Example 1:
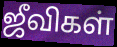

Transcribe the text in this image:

ஜீவிகள்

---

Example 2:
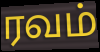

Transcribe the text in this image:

ரவம்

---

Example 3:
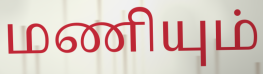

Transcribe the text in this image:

மணியும்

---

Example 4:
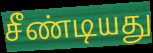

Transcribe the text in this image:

சீண்டியது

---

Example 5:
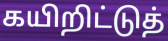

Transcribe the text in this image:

கயிறிட்டுத்